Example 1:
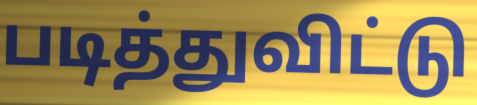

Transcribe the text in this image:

படித்துவிட்டு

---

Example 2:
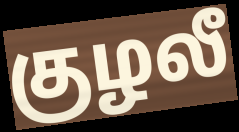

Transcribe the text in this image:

குழலீ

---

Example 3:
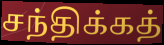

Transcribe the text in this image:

சந்திக்கத்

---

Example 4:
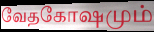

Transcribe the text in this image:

வேதகோஷமும்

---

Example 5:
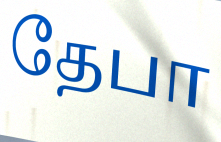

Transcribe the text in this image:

தேபா